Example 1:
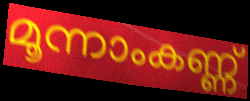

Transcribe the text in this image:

മൂന്നാംകണ്ണ്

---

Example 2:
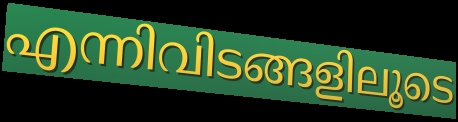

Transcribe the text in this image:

എന്നിവിടങ്ങളിലൂടെ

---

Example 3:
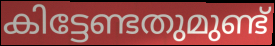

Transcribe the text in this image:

കിട്ടേണ്ടതുമുണ്ട്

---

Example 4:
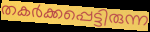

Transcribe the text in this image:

തകർക്കപ്പെട്ടിരുന്ന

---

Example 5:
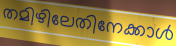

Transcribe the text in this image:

തമിഴിലേതിനേക്കാൾ